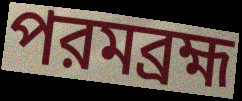
পরমব্রহ্ম